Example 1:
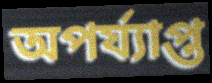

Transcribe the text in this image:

অপৰ্য্যাপ্ত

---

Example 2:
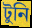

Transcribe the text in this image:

টুনি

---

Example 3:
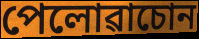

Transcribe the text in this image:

পেলোৱাচোন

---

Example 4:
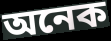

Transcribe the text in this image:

অনেক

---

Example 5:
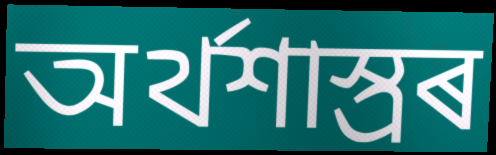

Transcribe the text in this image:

অৰ্থশাস্ত্ৰৰ